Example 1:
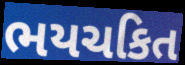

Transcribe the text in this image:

ભયચકિત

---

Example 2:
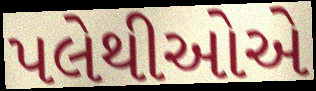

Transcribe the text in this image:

પલેથીઓએ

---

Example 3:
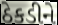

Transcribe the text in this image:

ઠેકડીને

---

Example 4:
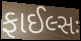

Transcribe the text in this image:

ફાઈલ્સઃ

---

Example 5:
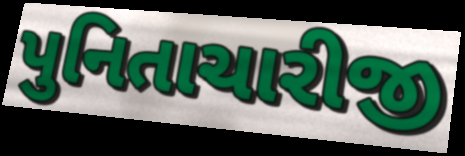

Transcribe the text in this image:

પુનિતાચારીજી